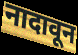
नादावून